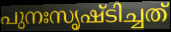
പുനഃസൃഷ്ടിച്ചത്